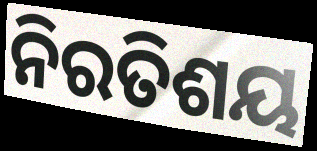
ନିରତିଶୟ